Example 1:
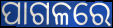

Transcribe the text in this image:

ପାଗଳରେ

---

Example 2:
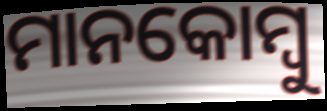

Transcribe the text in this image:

ମାନକୋମ୍ବୁ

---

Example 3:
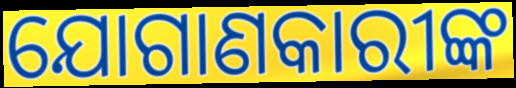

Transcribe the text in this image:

ଯୋଗାଣକାରୀଙ୍କ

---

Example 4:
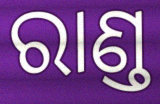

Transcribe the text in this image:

ରାଣ୍ଡ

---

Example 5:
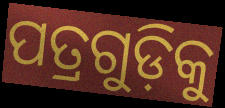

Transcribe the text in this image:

ପତ୍ରଗୁଡ଼ିକୁ